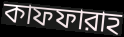
কাফফারাহ